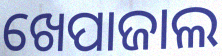
ଖେପାଜାଲ